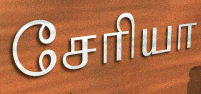
சேரியா